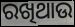
ରଖିଥାଉ